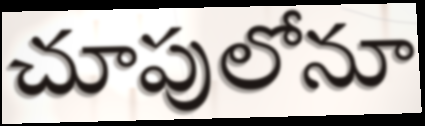
చూపులోనూ